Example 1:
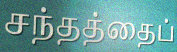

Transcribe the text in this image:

சந்தத்தைப்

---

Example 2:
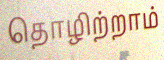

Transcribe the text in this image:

தொழிற்றாம்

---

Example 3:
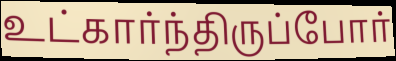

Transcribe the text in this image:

உட்கார்ந்திருப்போர்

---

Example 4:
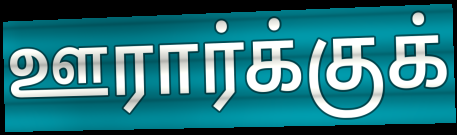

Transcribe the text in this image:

ஊரார்க்குக்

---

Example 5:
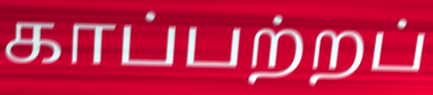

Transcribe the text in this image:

காப்பற்றப்